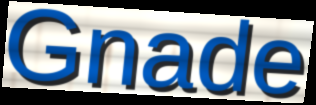
Gnade